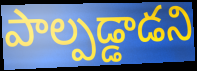
పాల్పడ్డాడని